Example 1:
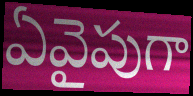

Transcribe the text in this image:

ఏవైపుగా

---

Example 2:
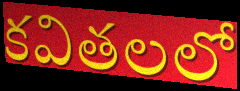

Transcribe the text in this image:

కవితలలో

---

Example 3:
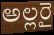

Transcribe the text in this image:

అల్లరై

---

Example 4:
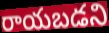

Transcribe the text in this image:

రాయబడని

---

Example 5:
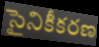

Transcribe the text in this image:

సైనికీకరణ